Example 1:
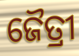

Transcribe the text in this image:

ଜୈତ୍ରୀ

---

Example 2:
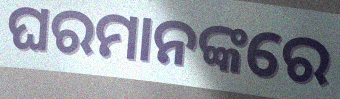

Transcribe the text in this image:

ଘରମାନଙ୍କରେ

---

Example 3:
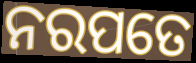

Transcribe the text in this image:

ନରପତେ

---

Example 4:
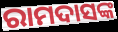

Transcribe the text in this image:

ରାମଦାସଙ୍କ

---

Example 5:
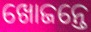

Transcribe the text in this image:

ଖୋଜନ୍ତେ